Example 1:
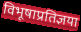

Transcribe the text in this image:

विभूषाप्रतिज्ञया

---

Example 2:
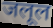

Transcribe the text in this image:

जलूल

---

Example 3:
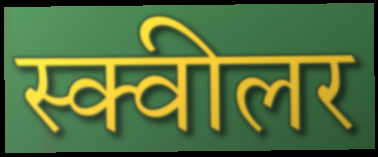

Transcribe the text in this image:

स्क्वीलर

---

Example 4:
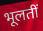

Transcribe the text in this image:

भूलतीं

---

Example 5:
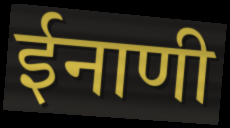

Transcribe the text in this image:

ईनाणी